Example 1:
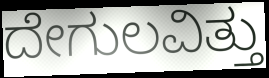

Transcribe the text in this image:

ದೇಗುಲವಿತ್ತು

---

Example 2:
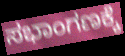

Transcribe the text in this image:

ಸಭಾಂಗಣಕ್ಕೆ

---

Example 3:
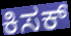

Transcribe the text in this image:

ಕಿಸಕ್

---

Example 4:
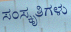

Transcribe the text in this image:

ಸಂಸ್ಕೃತಿಗಳು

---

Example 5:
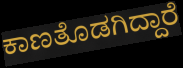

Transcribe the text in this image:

ಕಾಣತೊಡಗಿದ್ದಾರೆ